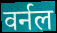
वर्नल